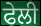
ਫੇਲੀ